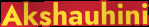
Akshauhini